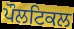
ਪੌਲਟਿਕਲ